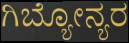
ಗಿಬ್ಯೋನ್ಯರ